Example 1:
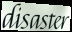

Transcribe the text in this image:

disaster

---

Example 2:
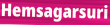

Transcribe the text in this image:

Hemsagarsuri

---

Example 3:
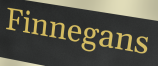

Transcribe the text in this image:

Finnegans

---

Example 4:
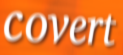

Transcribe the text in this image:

covert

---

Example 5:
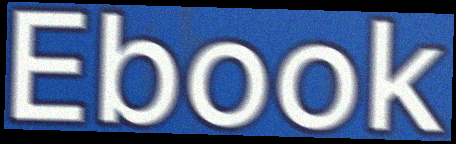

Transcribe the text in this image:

Ebook